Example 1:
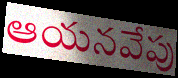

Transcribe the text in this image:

ఆయనవేపు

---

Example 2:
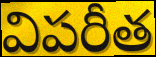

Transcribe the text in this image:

విపరీత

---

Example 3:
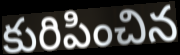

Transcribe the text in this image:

కురిపించిన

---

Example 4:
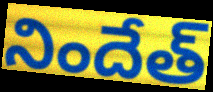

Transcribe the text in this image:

నిందేత్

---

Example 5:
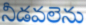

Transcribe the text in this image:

నీడవలెను